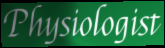
Physiologist